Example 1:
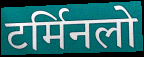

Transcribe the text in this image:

टर्मिनलो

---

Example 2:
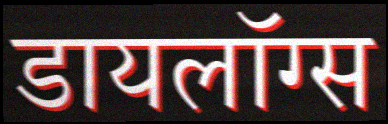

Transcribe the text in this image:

डायलॉग्स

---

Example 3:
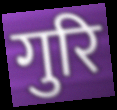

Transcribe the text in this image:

गुरि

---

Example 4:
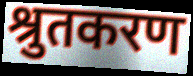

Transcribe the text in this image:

श्रुतकरण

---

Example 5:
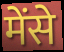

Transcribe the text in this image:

मेंसे